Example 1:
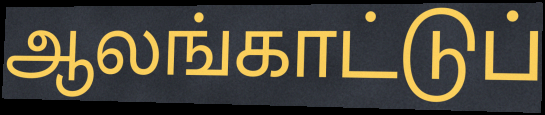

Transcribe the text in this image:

ஆலங்காட்டுப்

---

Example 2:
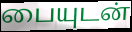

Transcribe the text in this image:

பையுடன்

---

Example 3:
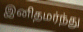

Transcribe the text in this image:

இனிதமர்ந்து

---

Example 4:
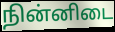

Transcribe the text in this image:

நின்னிடை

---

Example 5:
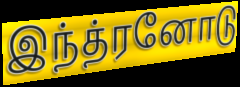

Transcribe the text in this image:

இந்த்ரனோடு